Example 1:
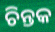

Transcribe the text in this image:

ଚିନ୍ତକ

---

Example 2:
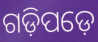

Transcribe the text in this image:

ଗଡ଼ିପଡ଼େ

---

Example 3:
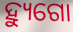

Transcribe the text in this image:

ହ୍ୟୁଗୋ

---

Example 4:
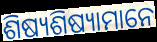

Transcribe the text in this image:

ଶିଷ୍ୟଶିଷ୍ୟାମାନେ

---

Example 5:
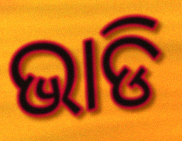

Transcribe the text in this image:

ଭାଡି